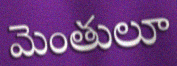
మెంతులూ